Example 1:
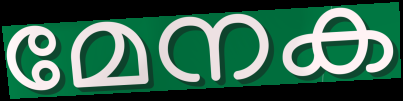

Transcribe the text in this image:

മേനക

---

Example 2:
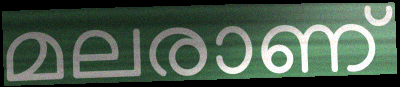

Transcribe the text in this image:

മലരാണ്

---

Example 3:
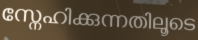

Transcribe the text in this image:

സ്നേഹിക്കുന്നതിലൂടെ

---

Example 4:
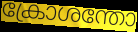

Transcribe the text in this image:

ക്രോശന്തോ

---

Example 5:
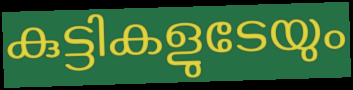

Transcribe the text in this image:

കുട്ടികളുടേയും